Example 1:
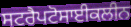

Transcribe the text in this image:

ਸਟਰੈਪਟੋਸਾਈਕਲੀਨ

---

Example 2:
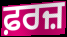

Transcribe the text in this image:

ਫ਼ਰਜ਼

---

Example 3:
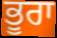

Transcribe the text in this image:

ਭੂਰਾ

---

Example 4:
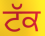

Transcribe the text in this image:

ਟੱਕ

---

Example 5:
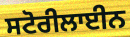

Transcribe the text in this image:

ਸਟੋਰੀਲਾਈਨ